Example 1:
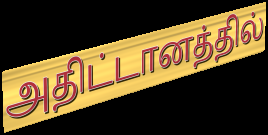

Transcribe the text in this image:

அதிட்டானத்தில்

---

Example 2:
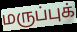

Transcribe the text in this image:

மருப்புக்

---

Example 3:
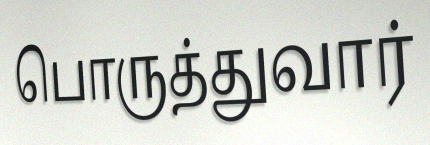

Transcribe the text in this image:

பொருத்துவார்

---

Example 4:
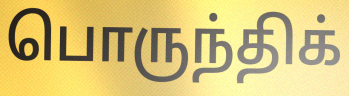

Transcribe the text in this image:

பொருந்திக்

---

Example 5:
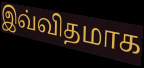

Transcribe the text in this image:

இவ்விதமாக